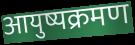
आयुष्यक्रमण